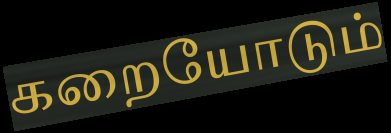
கறையோடும்